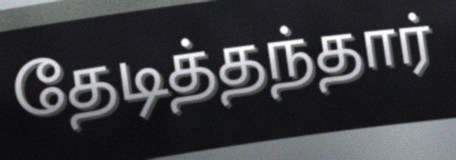
தேடித்தந்தார்